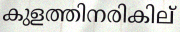
കുളത്തിനരികില്